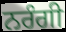
ਨਰੰਗੀ